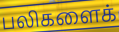
பலிகளைக்